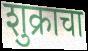
शुक्राचा